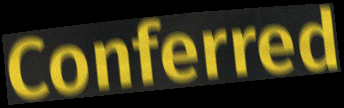
Conferred